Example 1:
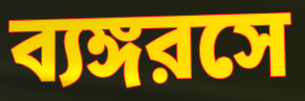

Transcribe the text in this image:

ব্যঙ্গরসে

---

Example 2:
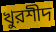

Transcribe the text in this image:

খুরশীদ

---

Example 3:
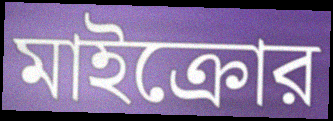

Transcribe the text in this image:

মাইক্রোর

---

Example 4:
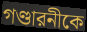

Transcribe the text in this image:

গণ্ডারনীকে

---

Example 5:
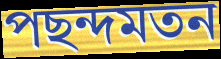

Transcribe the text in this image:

পছন্দমতন